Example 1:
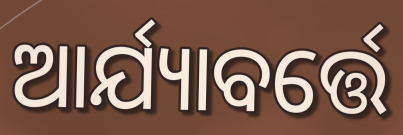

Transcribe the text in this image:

ଆର୍ଯ୍ୟାବର୍ତ୍ତେ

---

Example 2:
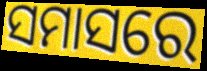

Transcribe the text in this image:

ସମାସରେ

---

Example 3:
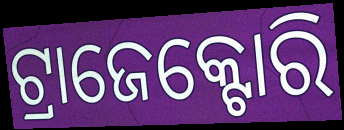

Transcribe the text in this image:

ଟ୍ରାଜେକ୍ଟୋରି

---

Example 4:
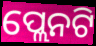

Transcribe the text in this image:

ପ୍ଲେନଟି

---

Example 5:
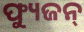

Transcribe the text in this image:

ଫ୍ୟୁଜନ୍